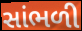
સાંભળી